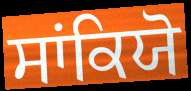
ਸਾਂਕਿਯੋ